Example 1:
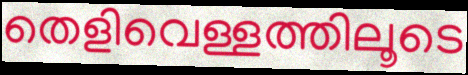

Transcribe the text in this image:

തെളിവെള്ളത്തിലൂടെ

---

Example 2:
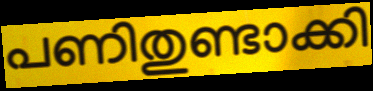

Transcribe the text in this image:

പണിതുണ്ടാക്കി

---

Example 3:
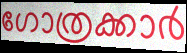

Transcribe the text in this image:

ഗോത്രക്കാർ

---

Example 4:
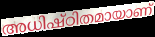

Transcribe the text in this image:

അധിഷ്ഠിതമായാണ്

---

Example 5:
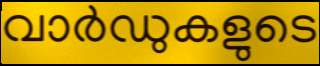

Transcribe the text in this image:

വാർഡുകളുടെ